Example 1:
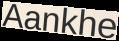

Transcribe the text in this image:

Aankhe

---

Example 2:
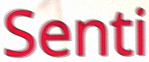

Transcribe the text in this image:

Senti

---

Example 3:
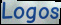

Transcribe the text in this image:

Logos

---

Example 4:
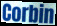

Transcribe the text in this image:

Corbin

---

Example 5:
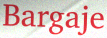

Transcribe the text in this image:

Bargaje